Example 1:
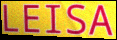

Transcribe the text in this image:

LEISA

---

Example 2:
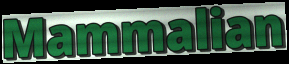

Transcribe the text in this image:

Mammalian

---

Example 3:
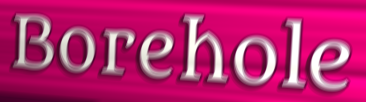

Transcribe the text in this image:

Borehole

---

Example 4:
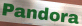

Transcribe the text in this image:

Pandora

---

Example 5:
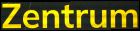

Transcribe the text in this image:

Zentrum